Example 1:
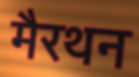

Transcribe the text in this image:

मैरथन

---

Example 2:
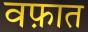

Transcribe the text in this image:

वफ़ात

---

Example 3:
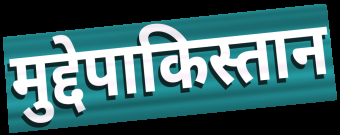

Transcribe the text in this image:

मुद्देपाकिस्तान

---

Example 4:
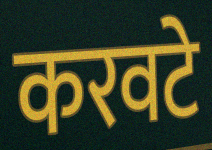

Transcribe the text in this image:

करवटे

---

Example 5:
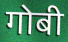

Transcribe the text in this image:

गोबी